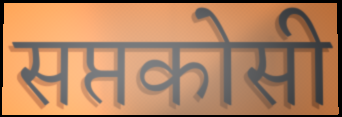
सप्तकोसी